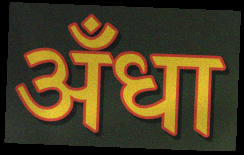
अँधा